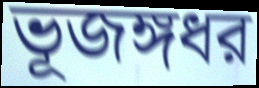
ভূজঙ্গধর